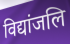
विद्यांजलि